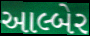
આલ્બેર